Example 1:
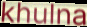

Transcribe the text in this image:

khulna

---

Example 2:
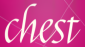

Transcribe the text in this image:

chest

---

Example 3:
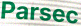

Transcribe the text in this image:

Parsec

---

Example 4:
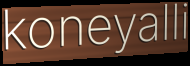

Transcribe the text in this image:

koneyalli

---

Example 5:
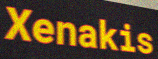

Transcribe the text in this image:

Xenakis